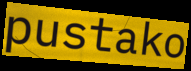
pustako